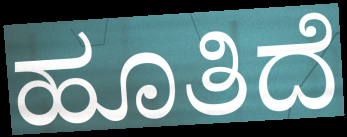
ಹೂತಿದೆ